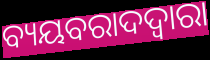
ବ୍ୟୟବରାଦଦ୍ଵାରା